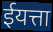
ईयत्ता